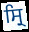
ਸ੍ਰਿ